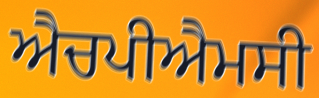
ਐਚਪੀਐਮਸੀ